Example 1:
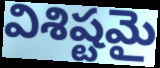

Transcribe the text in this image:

విశిష్టమై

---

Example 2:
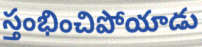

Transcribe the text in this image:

స్తంభించిపోయాడు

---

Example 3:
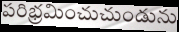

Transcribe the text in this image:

పరిభ్రమించుచుండును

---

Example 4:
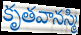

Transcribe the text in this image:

కృతవానస్మి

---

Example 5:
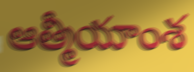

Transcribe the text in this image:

ఆత్మీయాంశ